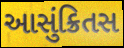
આસુંક્રિતસ